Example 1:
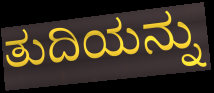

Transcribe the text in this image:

ತುದಿಯನ್ನು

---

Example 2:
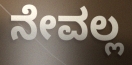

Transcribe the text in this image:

ನೇವಲ್ಲ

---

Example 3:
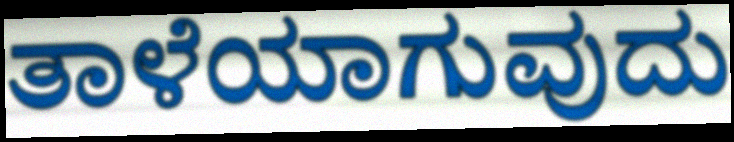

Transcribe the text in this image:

ತಾಳೆಯಾಗುವುದು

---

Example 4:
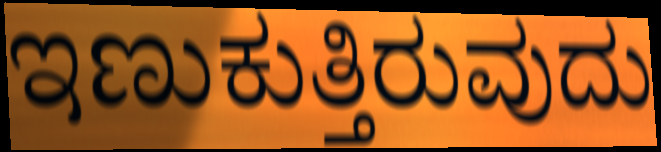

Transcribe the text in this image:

ಇಣುಕುತ್ತಿರುವುದು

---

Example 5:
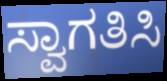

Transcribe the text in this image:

ಸ್ವಾಗತಿಸಿ